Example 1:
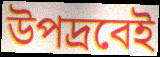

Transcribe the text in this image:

উপদ্রবেই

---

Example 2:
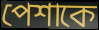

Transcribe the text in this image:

পেশাকে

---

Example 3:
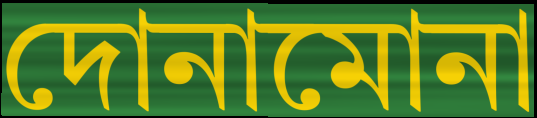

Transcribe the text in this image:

দোনামোনা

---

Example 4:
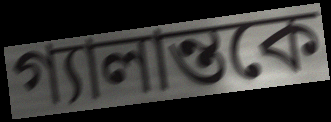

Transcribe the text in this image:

গ্যালান্তকে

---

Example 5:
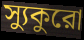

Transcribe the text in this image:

স্যুকুরো